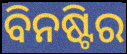
ବିନଷ୍ଟିର